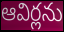
ఆవిర్లను